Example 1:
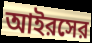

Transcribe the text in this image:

আইরসের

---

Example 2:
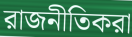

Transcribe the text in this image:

রাজনীতিকরা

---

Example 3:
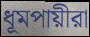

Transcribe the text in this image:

ধূমপায়ীরা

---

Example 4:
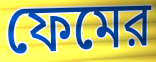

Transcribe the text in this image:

ফেমের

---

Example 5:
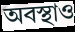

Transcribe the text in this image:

অবস্থাও